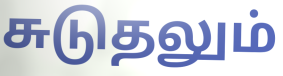
சுடுதலும்